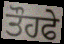
ਤੌਹਫੇ